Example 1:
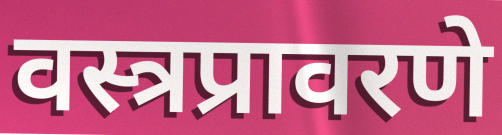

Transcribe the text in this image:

वस्त्रप्रावरणे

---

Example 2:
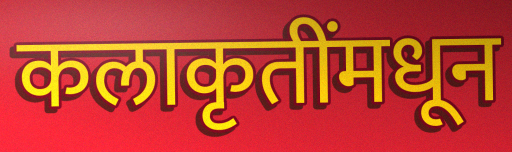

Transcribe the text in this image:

कलाकृतींमधून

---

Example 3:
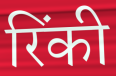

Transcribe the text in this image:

रिंकी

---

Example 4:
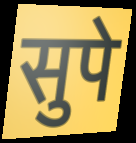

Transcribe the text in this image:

सुपे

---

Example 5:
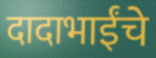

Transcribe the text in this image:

दादाभाईंचे